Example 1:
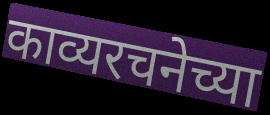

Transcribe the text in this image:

काव्यरचनेच्या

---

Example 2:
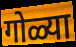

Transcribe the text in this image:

गोळ्या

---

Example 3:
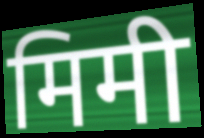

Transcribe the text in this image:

मिमी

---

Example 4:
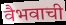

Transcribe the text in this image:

वैभवाची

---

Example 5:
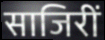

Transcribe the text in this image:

साजिरीं